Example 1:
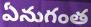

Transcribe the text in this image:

ఏనుగంత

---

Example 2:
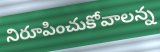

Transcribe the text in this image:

నిరూపించుకోవాలన్న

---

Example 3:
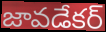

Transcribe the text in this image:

జావడేకర్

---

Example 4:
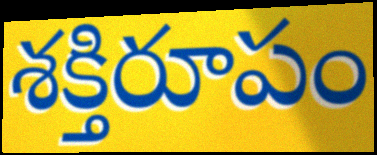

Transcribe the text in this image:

శక్తిరూపం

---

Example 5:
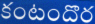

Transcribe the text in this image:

కంటందొర